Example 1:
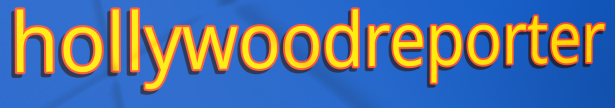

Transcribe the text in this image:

hollywoodreporter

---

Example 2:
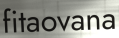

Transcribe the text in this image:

fitaovana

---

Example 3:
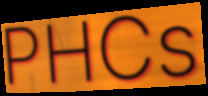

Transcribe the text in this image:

PHCs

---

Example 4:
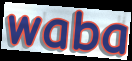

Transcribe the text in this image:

waba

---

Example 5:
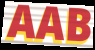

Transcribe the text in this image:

AAB